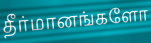
தீர்மானங்களோ